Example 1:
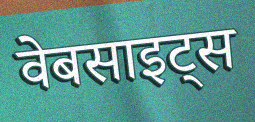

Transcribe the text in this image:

वेबसाइट्स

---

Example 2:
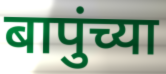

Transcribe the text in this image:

बापुंच्या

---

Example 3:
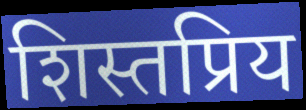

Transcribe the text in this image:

शिस्तप्रिय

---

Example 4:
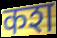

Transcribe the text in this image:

कश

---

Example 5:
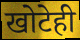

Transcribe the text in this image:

खोटेही